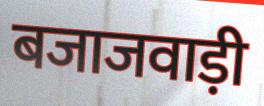
बजाजवाड़ी